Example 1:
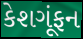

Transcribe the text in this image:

કેશગૂંફન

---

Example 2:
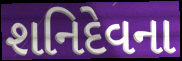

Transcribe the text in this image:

શનિદેવના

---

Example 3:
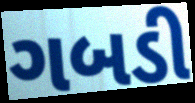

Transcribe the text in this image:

ગબડી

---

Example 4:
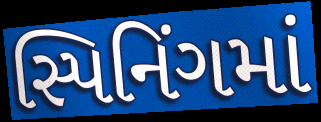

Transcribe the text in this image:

સ્પિનિંગમાં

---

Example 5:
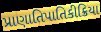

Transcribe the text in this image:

પ્રાણાતિપાતિકીક્રિયા